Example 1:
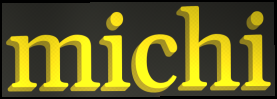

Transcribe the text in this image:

michi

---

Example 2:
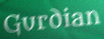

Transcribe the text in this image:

Gurdian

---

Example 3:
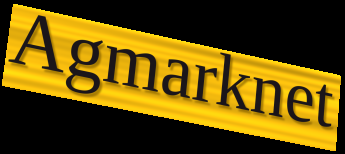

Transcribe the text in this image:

Agmarknet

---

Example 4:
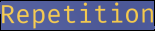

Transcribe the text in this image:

Repetition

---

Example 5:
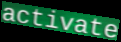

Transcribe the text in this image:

activate